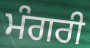
ਮੰਗਰੀ